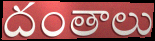
దంతాలు